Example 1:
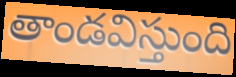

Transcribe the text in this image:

తాండవిస్తుంది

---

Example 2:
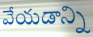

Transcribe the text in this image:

వేయడాన్ని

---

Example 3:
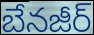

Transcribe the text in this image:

బేనజీర్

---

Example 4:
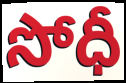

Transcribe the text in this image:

సోధీ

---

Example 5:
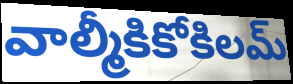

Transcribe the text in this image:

వాల్మీకికోకిలమ్